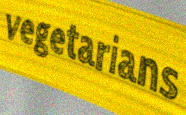
vegetarians